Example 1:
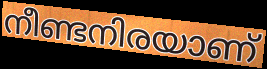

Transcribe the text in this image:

നീണ്ടനിരയാണ്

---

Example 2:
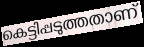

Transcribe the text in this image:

കെട്ടിപ്പടുത്തതാണ്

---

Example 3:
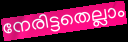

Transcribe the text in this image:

നേരിട്ടതെല്ലാം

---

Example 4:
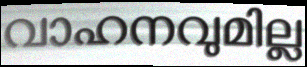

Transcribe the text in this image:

വാഹനവുമില്ല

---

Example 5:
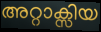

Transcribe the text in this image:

അറ്റാക്സിയ